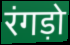
रंगड़ो